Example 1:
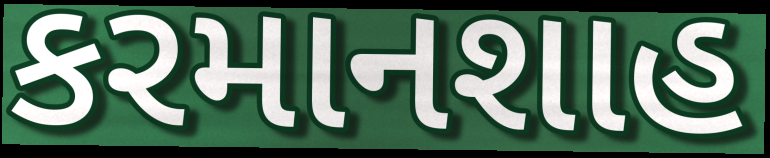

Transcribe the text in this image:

કરમાનશાહ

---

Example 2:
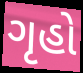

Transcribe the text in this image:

ગૃહો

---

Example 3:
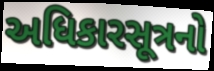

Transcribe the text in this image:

અધિકારસૂત્રનો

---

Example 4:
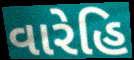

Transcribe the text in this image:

વારેહિ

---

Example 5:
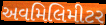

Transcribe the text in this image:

અવમિલિમીટર